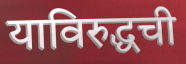
याविरुद्धची